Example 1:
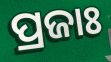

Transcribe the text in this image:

ପ୍ରଜାଃ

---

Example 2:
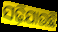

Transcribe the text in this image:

ସଢ଼ିଯାଉଛି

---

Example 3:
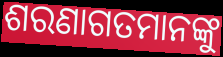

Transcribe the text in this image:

ଶରଣାଗତମାନଙ୍କୁ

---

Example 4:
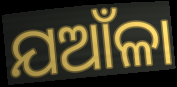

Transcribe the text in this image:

ଯଆଁଳା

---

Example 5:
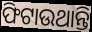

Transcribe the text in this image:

ଫିଟାଉଥାନ୍ତି